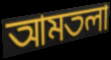
আমতলা